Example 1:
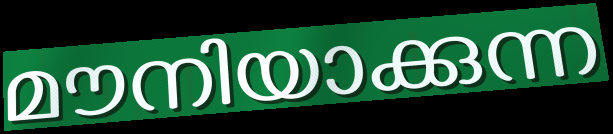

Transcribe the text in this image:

മൗനിയാക്കുന്ന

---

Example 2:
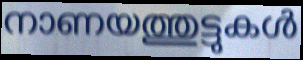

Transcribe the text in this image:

നാണയത്തുട്ടുകൾ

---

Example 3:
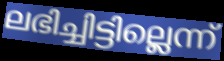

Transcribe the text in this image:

ലഭിച്ചിട്ടില്ലെന്ന്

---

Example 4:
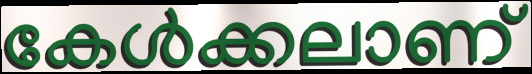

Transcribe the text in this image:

കേൾക്കലാണ്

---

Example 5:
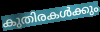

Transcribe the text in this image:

കുതിരകൾക്കും